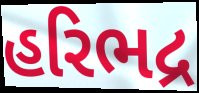
હરિભદ્ર